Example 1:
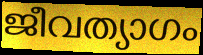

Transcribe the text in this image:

ജീവത്യാഗം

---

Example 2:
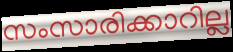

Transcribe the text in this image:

സംസാരിക്കാറില്ല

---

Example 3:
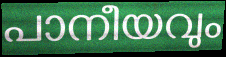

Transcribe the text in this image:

പാനീയവും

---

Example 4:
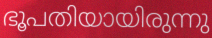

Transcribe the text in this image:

ഭൂപതിയായിരുന്നു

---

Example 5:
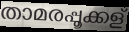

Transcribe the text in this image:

താമരപ്പൂക്കള്